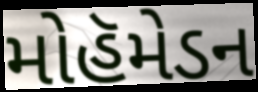
મોહૅમેડન